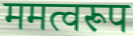
ममत्वरूप